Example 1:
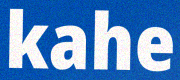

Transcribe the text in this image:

kahe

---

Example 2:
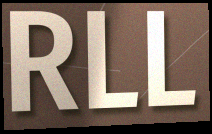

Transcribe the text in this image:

RLL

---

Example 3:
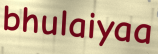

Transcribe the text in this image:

bhulaiyaa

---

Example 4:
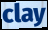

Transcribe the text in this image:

clay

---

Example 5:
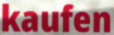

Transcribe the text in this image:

kaufen